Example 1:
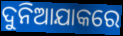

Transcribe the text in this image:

ଦୁନିଆଯାକରେ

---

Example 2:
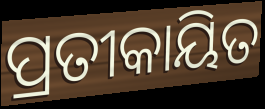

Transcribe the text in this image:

ପ୍ରତୀକାୟିତ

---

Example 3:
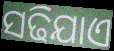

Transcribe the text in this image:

ସଢିଯାଏ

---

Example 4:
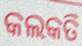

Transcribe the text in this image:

କଲକତି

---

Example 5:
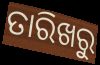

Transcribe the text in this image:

ତାରିଖରୁ